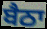
ਬੈਠਾ